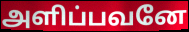
அளிப்பவனே